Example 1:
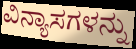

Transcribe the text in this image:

ವಿನ್ಯಾಸಗಳನ್ನು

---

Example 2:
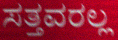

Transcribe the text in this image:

ಸತ್ತವರಲ್ಲ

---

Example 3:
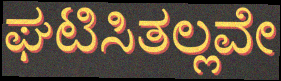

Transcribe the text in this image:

ಘಟಿಸಿತಲ್ಲವೇ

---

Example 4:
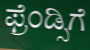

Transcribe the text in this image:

ಫ್ರೆಂಡ್ಸಿಗೆ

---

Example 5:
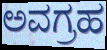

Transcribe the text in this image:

ಅವಗ್ರಹ